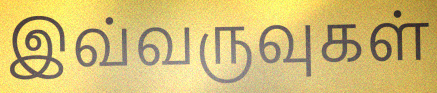
இவ்வருவுகள்